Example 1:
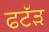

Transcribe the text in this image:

ਫਟੱੜ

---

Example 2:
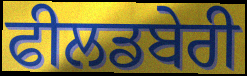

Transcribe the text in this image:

ਫੀਲਡਬੇਰੀ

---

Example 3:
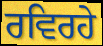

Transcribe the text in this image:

ਰਵਿਰਹੇ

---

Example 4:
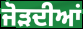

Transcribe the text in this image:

ਜੋੜਦੀਆਂ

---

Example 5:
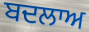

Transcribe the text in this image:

ਬਦਲਾਅ